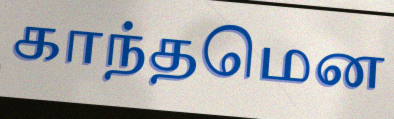
காந்தமென